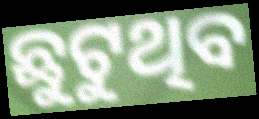
ଛୁଟୁଥିବ